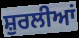
ਸ਼ੁਰਲੀਆਂ